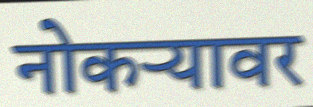
नोकऱ्यावर